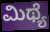
ಮಿಥ್ಯೆ